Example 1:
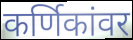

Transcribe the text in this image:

कर्णिकांवर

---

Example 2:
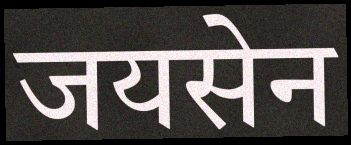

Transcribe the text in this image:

जयसेन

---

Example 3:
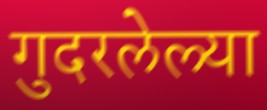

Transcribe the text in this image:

गुदरलेल्या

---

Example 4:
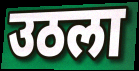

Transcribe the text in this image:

उठला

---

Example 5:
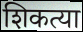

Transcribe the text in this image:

शिकत्या